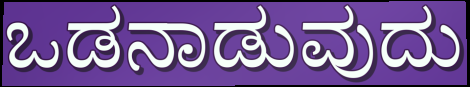
ಒಡನಾಡುವುದು